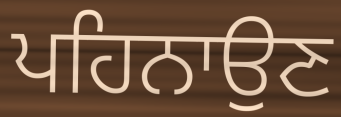
ਪਹਿਨਾਉਣ